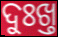
ଦୁଃଖ୍ତ